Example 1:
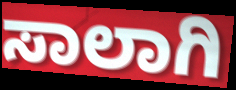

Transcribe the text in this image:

ಸಾಲಾಗಿ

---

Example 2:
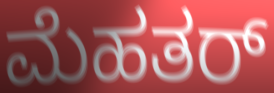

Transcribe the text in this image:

ಮೆಹತರ್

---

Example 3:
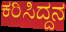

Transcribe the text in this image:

ಕರಿಸಿದ್ದನ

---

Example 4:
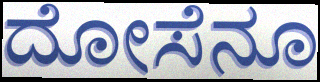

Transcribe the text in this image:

ದೋಸೆನೂ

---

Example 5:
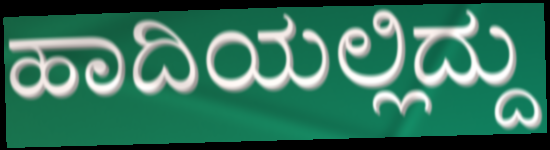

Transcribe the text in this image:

ಹಾದಿಯಲ್ಲಿದ್ದು